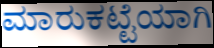
ಮಾರುಕಟ್ಟೆಯಾಗಿ